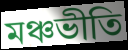
মঞ্চভীতি